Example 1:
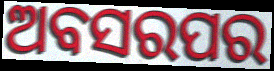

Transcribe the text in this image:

ଅବସରପର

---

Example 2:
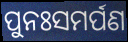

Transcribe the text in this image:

ପୁନଃସମର୍ପଣ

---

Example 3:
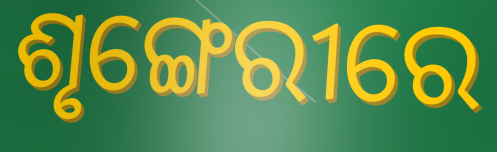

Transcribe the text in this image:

ଶୃଙ୍ଗେରୀରେ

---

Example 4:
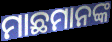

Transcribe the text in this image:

ମାଛମାନଙ୍କ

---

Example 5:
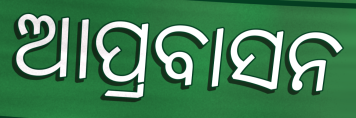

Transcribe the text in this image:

ଆପ୍ରବାସନ